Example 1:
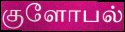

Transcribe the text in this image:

குளோபல்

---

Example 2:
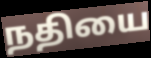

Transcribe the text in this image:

நதியை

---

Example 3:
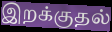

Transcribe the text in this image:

இறக்குதல்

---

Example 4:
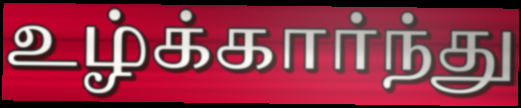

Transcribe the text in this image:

உழ்க்கார்ந்து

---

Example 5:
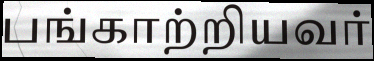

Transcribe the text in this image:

பங்காற்றியவர்